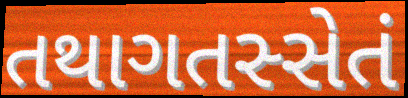
તથાગતસ્સેતં